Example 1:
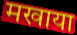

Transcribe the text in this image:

मखाया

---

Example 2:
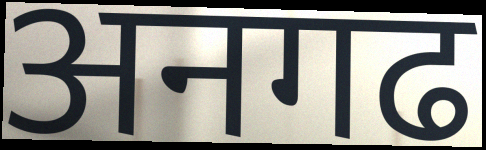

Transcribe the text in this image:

अनगढ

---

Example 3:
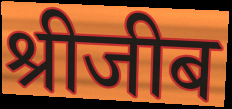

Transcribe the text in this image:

श्रीजीब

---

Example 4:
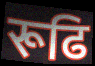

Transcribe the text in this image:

रूढि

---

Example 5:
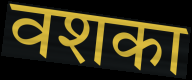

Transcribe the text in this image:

वशका